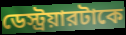
ডেস্ট্রয়ারটাকে